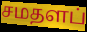
சமதளப்